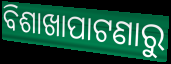
ବିଶାଖାପାଟଣାରୁ